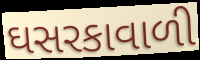
ઘસરકાવાળી